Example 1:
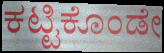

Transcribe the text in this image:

ಕಟ್ಟಿಕೊಂಡೇ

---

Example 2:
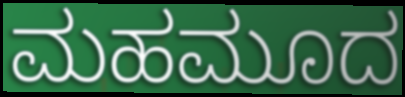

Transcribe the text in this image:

ಮಹಮೂದ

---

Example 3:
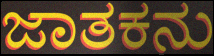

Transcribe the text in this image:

ಜಾತಕನು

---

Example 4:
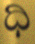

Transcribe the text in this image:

ಧಿ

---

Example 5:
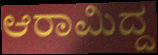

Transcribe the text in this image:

ಆರಾಮಿದ್ದ